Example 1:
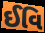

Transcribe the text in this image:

ઈવિ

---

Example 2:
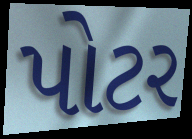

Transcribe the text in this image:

પોટર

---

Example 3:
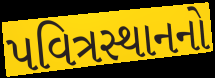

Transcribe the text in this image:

પવિત્રસ્થાનનો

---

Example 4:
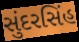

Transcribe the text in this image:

સુંદરસિંહ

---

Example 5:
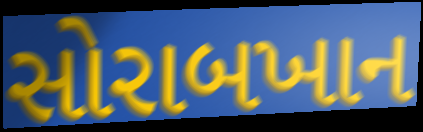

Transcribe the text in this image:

સોરાબખાન